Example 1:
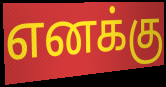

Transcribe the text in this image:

எனக்கு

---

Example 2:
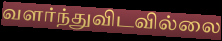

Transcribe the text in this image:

வளர்ந்துவிடவில்லை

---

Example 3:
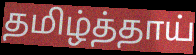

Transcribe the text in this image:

தமிழ்த்தாய்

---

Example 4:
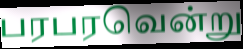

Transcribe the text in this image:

பரபரவென்று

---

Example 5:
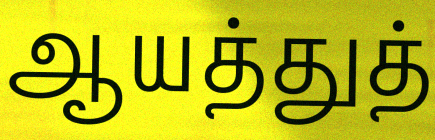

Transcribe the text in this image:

ஆயத்துத்